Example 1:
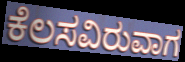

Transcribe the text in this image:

ಕೆಲಸವಿರುವಾಗ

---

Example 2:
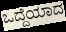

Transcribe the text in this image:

ಒದ್ದೆಯಾದ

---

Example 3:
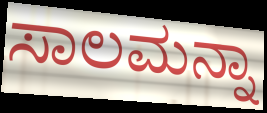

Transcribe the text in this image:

ಸಾಲಮನ್ನಾ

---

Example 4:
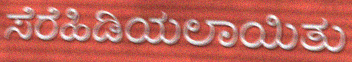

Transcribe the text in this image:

ಸೆರೆಹಿಡಿಯಲಾಯಿತು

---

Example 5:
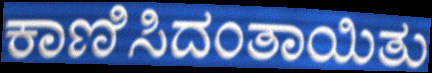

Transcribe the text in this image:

ಕಾಣಿಸಿದಂತಾಯಿತು